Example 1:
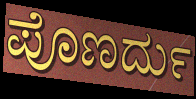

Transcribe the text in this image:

ಪೊಣರ್ದು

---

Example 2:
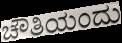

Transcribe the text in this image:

ಚೌತಿಯಂದು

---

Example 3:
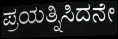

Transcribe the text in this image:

ಪ್ರಯತ್ನಿಸಿದನೇ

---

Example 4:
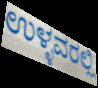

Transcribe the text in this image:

ಉಳ್ಳವರಲ್ಲಿ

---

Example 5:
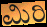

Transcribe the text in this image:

ಮಿರಿ